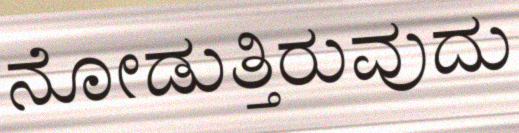
ನೋಡುತ್ತಿರುವುದು